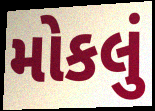
મોકલું